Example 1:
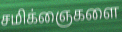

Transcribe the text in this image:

சமிக்ஞைகளை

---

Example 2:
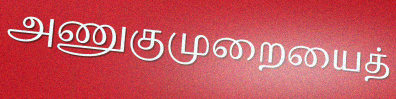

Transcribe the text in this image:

அணுகுமுறையைத்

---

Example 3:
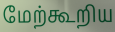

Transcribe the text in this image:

மேற்கூறிய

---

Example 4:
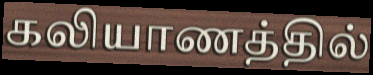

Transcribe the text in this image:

கலியாணத்தில்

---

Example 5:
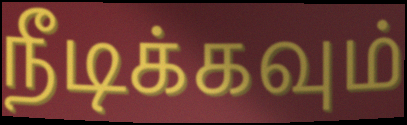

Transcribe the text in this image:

நீடிக்கவும்